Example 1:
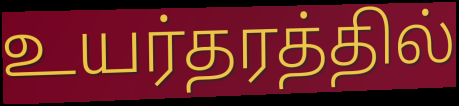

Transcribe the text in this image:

உயர்தரத்தில்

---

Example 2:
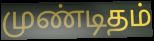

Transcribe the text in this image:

முண்டிதம்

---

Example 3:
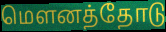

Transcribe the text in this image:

மௌனத்தோடு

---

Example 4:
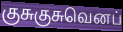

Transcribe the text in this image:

குசுகுசுவெனப்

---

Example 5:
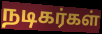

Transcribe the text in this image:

நடிகர்கள்